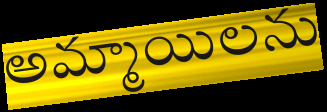
అమ్మాయిలను